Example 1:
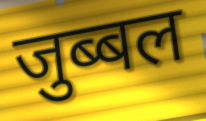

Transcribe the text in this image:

जुब्बल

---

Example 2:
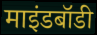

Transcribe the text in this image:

माइंडबॉडी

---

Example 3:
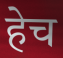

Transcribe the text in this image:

हेच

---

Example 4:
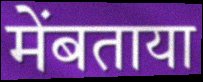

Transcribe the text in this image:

मेंबताया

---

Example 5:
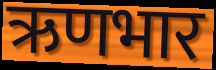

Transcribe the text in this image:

ऋणभार